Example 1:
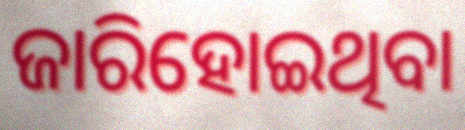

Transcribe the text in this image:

ଜାରିହୋଇଥିବା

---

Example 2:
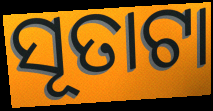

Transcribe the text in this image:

ସୂତାଟା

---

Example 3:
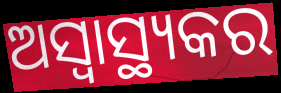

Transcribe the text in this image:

ଅସ୍ୱାସ୍ଥ୍ୟକର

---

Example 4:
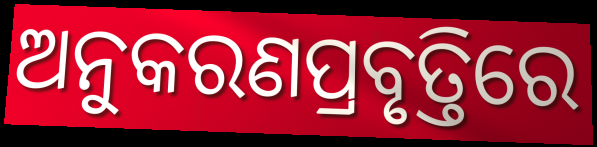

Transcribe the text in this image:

ଅନୁକରଣପ୍ରବୃତ୍ତିରେ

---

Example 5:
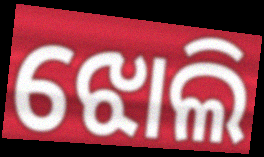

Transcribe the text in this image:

ଝୋଲି